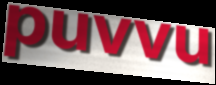
puvvu